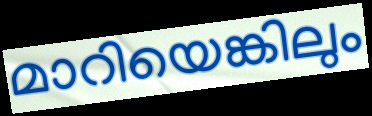
മാറിയെങ്കിലും